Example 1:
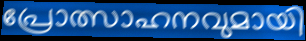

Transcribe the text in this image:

പ്രോത്സാഹനവുമായി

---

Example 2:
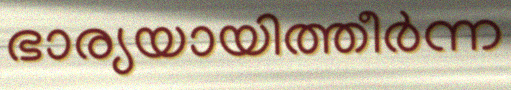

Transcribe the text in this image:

ഭാര്യയായിത്തീർന്ന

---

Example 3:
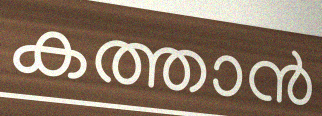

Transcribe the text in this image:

കത്താൻ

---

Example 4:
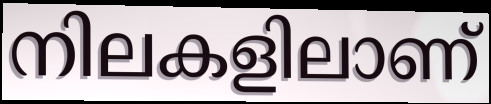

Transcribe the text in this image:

നിലകളിലാണ്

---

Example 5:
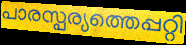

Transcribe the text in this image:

പാരസ്പര്യത്തെപ്പറ്റി